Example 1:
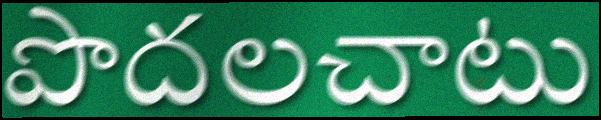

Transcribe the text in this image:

పొదలచాటు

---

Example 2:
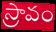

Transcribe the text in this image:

స్రావం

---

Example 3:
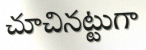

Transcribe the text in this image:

చూచినట్టుగా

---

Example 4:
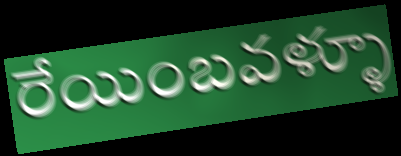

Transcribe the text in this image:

రేయింబవళ్ళూ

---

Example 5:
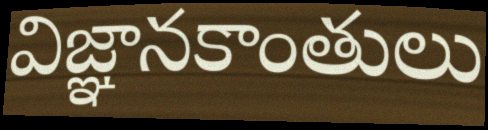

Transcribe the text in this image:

విజ్ఞానకాంతులు